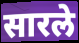
सारले